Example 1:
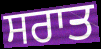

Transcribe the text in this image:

ਸਰਾਤ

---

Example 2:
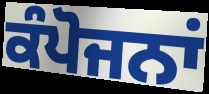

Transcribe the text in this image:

ਕੰਪੋਜਨਾਂ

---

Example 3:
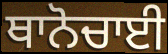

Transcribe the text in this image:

ਥਾਨੋਚਾਈ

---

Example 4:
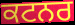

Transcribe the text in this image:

ਕਟਨਰ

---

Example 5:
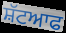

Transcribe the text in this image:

ਸ਼ੱਟਆਫ